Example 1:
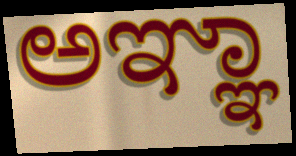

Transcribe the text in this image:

ಅಞ್ಞಾ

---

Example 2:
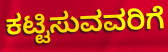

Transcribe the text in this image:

ಕಟ್ಟಿಸುವವರಿಗೆ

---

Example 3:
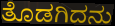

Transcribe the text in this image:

ತೊಡಗಿದನು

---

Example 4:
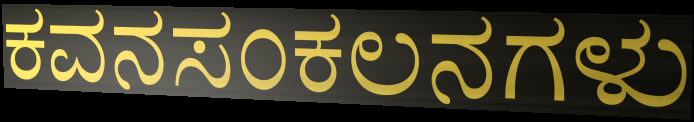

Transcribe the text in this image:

ಕವನಸಂಕಲನಗಳು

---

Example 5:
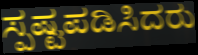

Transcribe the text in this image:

ಸ್ಪಷ್ಟಪಡಿಸಿದರು